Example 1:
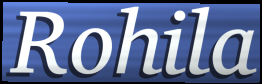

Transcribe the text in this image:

Rohila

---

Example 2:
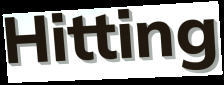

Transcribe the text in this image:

Hitting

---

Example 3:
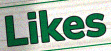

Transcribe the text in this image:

Likes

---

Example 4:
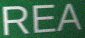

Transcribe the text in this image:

REA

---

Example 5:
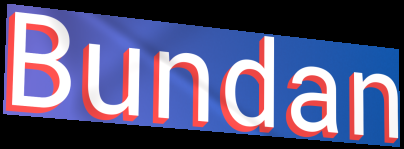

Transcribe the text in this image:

Bundan